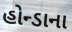
હોન્ડાના